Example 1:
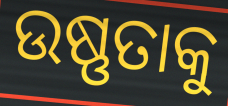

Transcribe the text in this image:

ଉଷ୍ଣତାକୁ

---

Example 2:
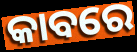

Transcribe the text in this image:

କାବରେ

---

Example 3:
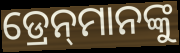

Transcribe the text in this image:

ଡ୍ରେନ୍‌ମାନଙ୍କୁ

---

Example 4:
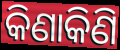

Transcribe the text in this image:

କିଣାକିଣି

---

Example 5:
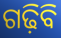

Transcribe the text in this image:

ଗଢ଼ିବି